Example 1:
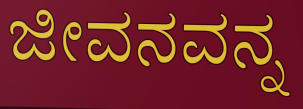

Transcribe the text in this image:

ಜೀವನವನ್ನ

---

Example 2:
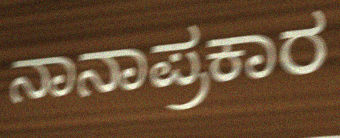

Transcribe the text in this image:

ನಾನಾಪ್ರಕಾರ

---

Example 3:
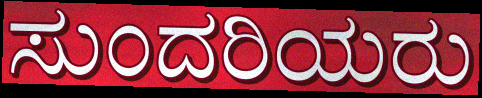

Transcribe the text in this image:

ಸುಂದರಿಯರು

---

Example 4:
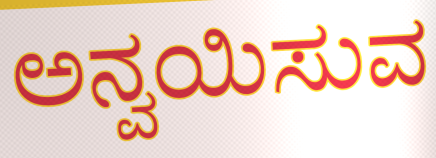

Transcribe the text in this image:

ಅನ್ವಯಿಸುವ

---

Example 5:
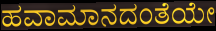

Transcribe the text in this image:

ಹವಾಮಾನದಂತೆಯೇ